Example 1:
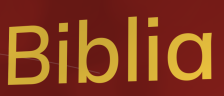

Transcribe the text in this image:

Biblia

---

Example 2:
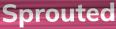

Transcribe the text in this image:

Sprouted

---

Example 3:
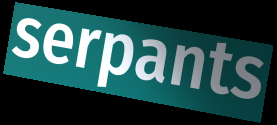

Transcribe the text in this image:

serpants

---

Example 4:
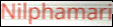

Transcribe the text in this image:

Nilphamari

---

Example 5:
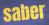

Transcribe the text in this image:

saber